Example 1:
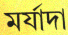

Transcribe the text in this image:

মর্যাদা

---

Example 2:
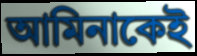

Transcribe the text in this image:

আমিনাকেই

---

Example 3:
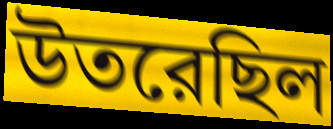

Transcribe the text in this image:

উতরেছিল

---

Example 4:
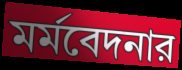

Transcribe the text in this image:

মর্মবেদনার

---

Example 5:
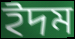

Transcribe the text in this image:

ইদম